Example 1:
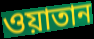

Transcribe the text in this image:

ওয়াতান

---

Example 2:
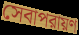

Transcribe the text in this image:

সেবাপরায়ণ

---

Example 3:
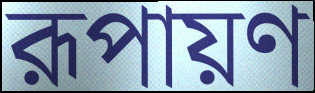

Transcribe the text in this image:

রূপায়ণ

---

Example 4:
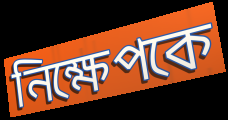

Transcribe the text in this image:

নিক্ষেপকে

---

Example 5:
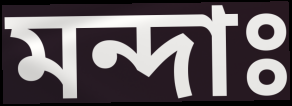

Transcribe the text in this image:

মন্দাঃ